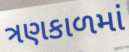
ત્રણકાળમાં